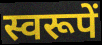
स्वरूपें